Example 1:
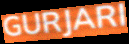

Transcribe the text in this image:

GURJARI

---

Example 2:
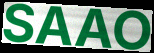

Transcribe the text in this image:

SAAO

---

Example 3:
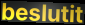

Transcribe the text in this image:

beslutit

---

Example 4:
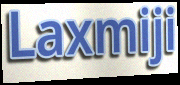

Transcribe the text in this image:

Laxmiji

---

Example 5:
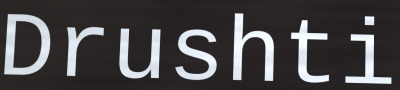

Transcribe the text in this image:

Drushti